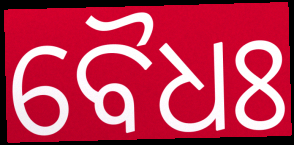
ବୈଧଃ